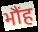
भौंह